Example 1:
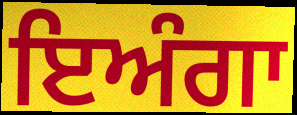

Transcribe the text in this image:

ਇਅੰਗਾ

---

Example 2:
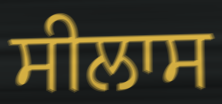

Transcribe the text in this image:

ਸੀਲਾਸ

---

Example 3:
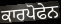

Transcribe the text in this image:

ਕਾਰਪੋਫੇਨ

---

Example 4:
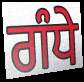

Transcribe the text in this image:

ਗੰਧੇ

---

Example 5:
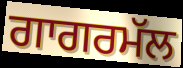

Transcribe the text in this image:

ਗਾਗਰਮੱਲ